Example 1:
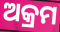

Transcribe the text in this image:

ଅକ୍ରମ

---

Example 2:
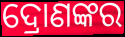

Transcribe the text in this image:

ଦ୍ରୋଣଙ୍କର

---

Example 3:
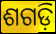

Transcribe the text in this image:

ଶଗଡ଼ି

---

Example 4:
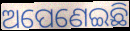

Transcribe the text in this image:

ଅପେଣେଇଛି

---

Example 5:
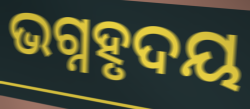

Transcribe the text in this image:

ଭଗ୍ନହୃଦୟ